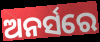
ଅନର୍ସରେ